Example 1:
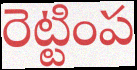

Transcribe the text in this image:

రెట్టింప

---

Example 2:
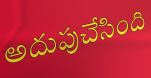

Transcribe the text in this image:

అదుపుచేసింది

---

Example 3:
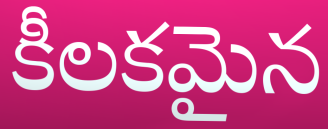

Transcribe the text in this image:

కీలకమైన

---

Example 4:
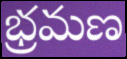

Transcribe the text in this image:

భ్రమణ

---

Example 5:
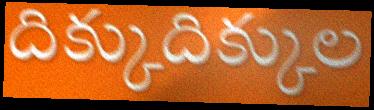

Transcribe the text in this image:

దిక్కుదిక్కుల